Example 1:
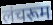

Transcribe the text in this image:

लंचरूम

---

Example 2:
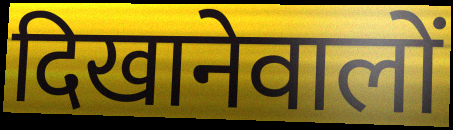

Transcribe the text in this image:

दिखानेवालों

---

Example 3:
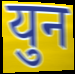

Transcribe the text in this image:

युन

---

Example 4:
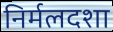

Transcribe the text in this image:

निर्मलदशा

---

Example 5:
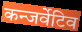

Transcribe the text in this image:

कन्जर्वेटिव